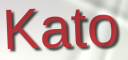
Kato